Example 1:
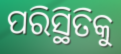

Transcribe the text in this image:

ପରିସ୍ଥିତିକୁ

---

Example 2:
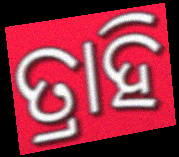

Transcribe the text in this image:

ତ୍ରାହି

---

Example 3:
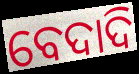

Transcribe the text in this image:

ବେଦାଦି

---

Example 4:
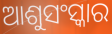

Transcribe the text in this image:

ଆଶୁସଂସ୍କାର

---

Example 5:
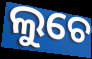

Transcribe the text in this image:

ଲୁଚେ